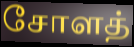
சோளத்